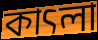
কাৎলা